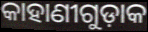
କାହାଣୀଗୁଡ଼ାକ